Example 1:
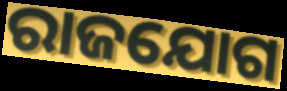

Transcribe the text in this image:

ରାଜଯୋଗ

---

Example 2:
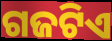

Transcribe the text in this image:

ଗଜଟିଏ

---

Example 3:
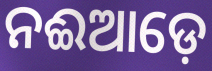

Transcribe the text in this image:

ନଈଆଡ଼େ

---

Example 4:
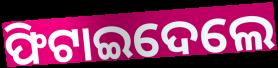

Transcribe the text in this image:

ଫିଟାଇଦେଲେ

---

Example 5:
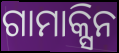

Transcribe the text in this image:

ଗାମାକ୍ସିନ